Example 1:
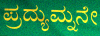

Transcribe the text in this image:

ಪ್ರದ್ಯುಮ್ನನೇ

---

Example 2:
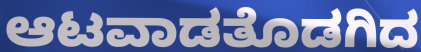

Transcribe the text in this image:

ಆಟವಾಡತೊಡಗಿದ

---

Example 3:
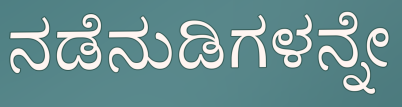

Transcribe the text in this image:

ನಡೆನುಡಿಗಳನ್ನೇ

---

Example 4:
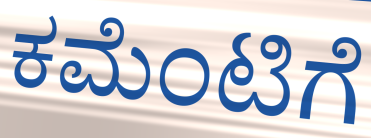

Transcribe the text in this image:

ಕಮೆಂಟಿಗೆ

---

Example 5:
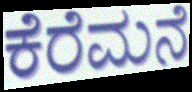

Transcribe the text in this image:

ಕೆರೆಮನೆ